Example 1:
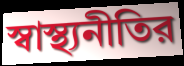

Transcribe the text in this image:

স্বাস্থ্যনীতির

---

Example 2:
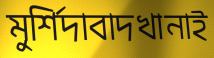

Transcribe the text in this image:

মুর্শিদাবাদখানাই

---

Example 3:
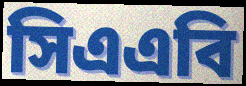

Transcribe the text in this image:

সিএএবি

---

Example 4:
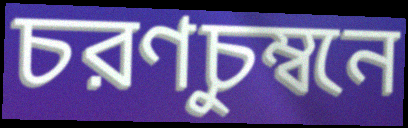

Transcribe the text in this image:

চরণচুম্বনে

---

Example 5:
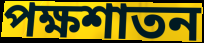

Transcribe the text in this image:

পক্ষশাতন